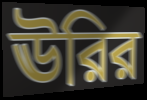
ঊরির